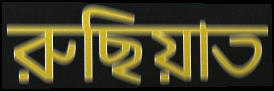
ৰুছিয়াত